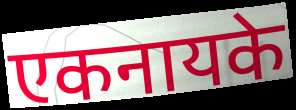
एकनायके